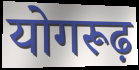
योगरूढ़